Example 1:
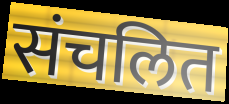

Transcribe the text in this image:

संचलित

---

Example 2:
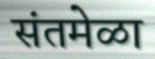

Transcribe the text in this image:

संतमेळा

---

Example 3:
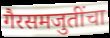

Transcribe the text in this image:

गैरसमजुतींचा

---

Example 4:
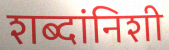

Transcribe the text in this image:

शब्दांनिशी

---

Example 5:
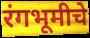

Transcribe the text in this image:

रंगभूमीचे